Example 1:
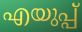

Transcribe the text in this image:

എയുപ്പ്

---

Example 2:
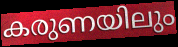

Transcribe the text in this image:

കരുണയിലും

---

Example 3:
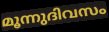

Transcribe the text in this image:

മൂന്നുദിവസം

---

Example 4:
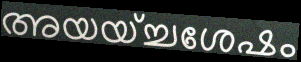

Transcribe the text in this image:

അയയ്ച്ചശേഷം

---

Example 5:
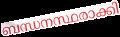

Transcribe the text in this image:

ബന്ധനസ്ഥരാക്കി